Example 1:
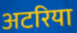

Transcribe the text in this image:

अटरिया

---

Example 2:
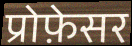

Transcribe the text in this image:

प्रोफ़ेसर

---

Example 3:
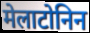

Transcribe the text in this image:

मेलाटोनिन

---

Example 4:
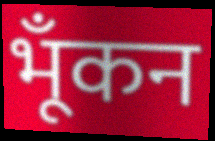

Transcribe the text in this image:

भूँकन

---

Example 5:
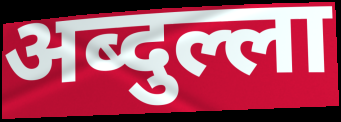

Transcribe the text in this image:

अब्दुल्ला